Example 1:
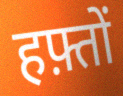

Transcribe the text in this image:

हफ़्तों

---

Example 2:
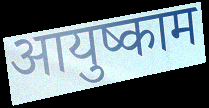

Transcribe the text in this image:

आयुष्काम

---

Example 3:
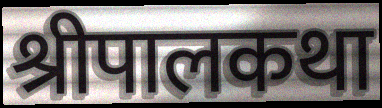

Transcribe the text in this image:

श्रीपालकथा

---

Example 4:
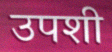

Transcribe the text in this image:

उपशी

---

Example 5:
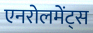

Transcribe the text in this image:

एनरोलमेंट्स